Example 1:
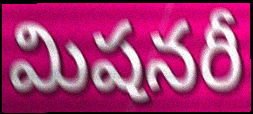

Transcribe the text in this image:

మిషనరీ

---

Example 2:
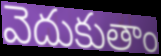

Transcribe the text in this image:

వెదుకుతాం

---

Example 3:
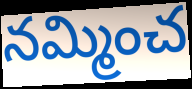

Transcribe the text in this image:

నమ్మించ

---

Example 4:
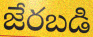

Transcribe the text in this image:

జేరబడి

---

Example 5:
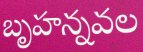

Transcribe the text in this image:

బృహన్నవల